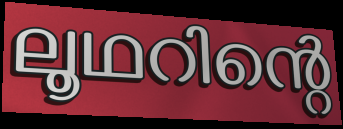
ലൂഥറിന്റെ